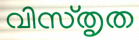
വിസ്തൃത